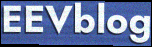
EEVblog